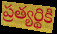
ప్రత్యర్థికి